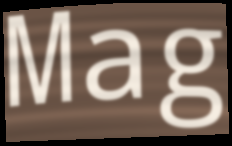
Mag